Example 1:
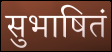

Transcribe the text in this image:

सुभाषितं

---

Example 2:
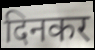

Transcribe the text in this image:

दिनकर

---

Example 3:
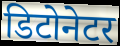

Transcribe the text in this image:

डिटोनेटर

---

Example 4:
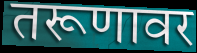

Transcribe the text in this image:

तरूणावर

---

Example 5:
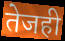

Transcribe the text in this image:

तेजही